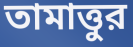
তামাত্তুর